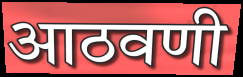
आठवणी